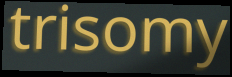
trisomy